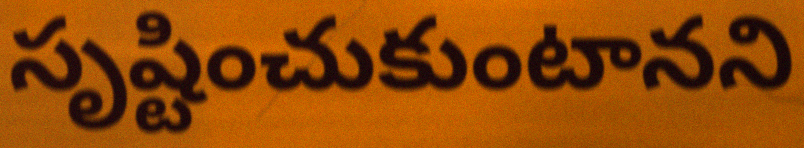
సృష్టించుకుంటానని